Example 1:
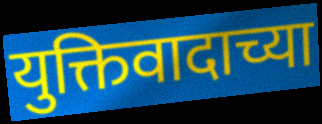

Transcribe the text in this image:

युक्तिवादाच्या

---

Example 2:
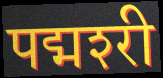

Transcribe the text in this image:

पद्मश्री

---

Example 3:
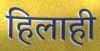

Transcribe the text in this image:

हिलाही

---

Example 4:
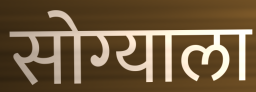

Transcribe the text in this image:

सोग्याला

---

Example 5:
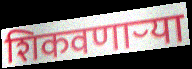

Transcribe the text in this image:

शिकवणाऱ्या